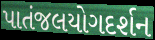
પાતંજલયોગદર્શન